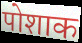
पोशाक